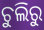
ଚୁଲିରୁ